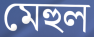
মেহুল